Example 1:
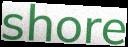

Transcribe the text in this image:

shore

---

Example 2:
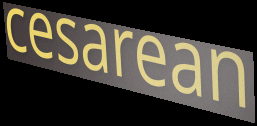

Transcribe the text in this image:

cesarean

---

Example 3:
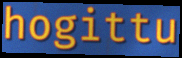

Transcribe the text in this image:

hogittu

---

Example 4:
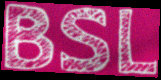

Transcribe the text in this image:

BSL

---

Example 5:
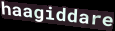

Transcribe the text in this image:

haagiddare